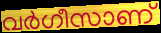
വർഗീസാണ്